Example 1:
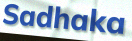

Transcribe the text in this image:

Sadhaka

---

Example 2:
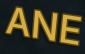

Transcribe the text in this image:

ANE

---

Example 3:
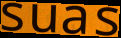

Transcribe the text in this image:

suas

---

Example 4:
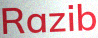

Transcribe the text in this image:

Razib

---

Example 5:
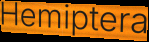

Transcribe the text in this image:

Hemiptera